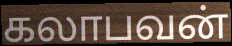
கலாபவன்